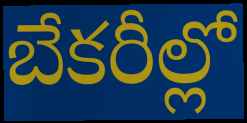
బేకరీల్లో